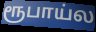
ரூபாய்ல